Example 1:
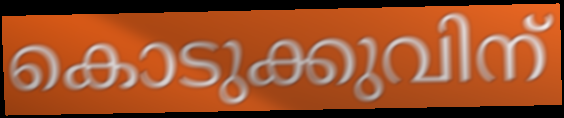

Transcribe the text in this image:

കൊടുക്കുവിന്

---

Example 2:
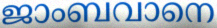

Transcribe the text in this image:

ജാംബവാനെ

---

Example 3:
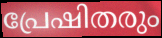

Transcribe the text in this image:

പ്രേഷിതരും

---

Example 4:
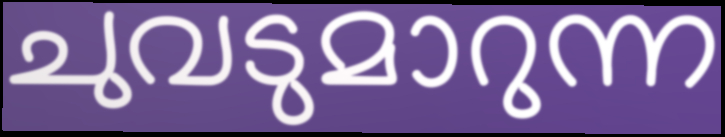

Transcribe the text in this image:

ചുവടുമാറുന്ന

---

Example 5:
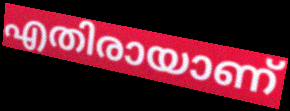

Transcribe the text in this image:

എതിരായാണ്